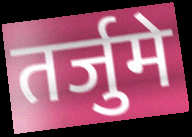
तर्जुमे